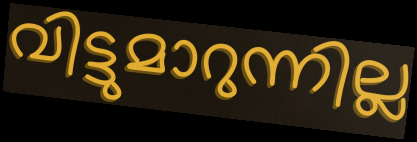
വിട്ടുമാറുന്നില്ല